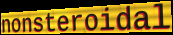
nonsteroidal